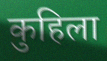
कुहिला